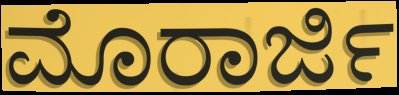
ಮೊರಾರ್ಜಿ